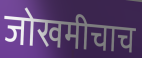
जोखमीचाच